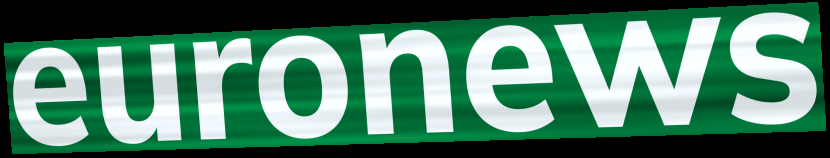
euronews